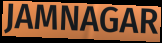
JAMNAGAR